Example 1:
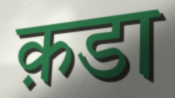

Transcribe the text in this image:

क़डा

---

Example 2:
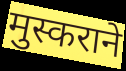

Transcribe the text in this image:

मुस्कराने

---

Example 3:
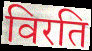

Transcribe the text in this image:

विरति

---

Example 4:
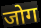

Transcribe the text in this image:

जोग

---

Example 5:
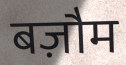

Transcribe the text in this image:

बज़ौम